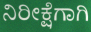
ನಿರೀಕ್ಷೆಗಾಗಿ